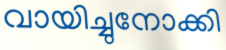
വായിച്ചുനോക്കി